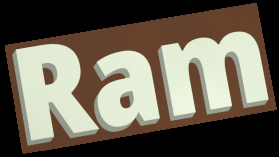
Ram